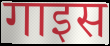
गाइस